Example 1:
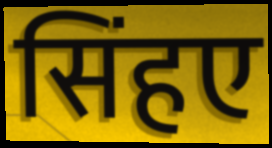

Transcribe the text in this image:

सिंहए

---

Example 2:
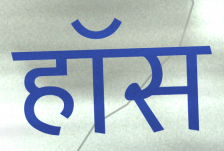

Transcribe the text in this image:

हॉस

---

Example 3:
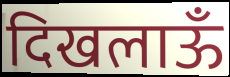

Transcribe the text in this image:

दिखलाऊँ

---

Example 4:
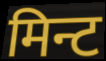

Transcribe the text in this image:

मिन्ट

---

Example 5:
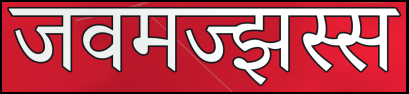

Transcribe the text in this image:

जवमज्झस्स